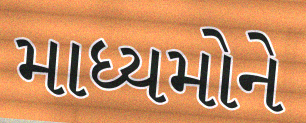
માધ્યમોને